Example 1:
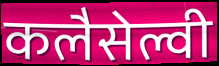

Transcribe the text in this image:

कलैसेल्वी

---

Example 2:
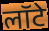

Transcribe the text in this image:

लॉटे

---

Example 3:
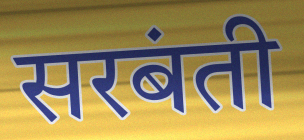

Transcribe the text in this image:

सरबंती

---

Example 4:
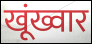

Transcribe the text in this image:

खूंख्वार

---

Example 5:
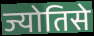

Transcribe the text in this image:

ज्योतिसे